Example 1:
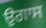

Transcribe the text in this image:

ਉਗਾਸ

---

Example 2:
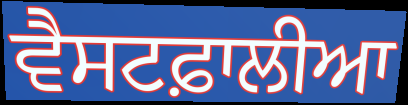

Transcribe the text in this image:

ਵੈਸਟਫ਼ਾਲੀਆ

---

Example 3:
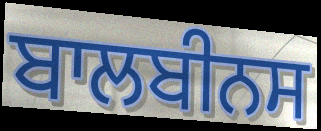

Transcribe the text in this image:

ਬਾਲਬੀਨਸ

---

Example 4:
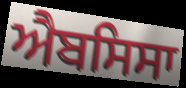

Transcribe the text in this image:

ਐਬਸਿਸਾ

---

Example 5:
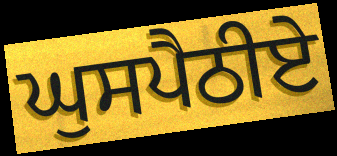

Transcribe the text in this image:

ਘੁਸਪੈਠੀਏ